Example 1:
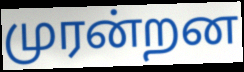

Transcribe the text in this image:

முரன்றன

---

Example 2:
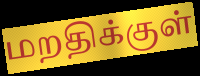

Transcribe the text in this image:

மறதிக்குள்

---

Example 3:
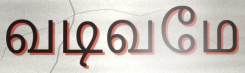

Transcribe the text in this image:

வடிவமே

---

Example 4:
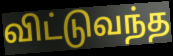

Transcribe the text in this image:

விட்டுவந்த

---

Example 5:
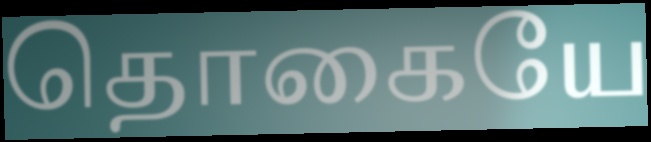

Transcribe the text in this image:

தொகையே